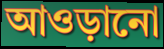
আওড়ানো